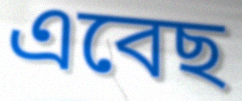
এবেছ